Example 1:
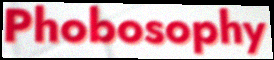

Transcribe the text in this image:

Phobosophy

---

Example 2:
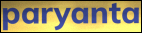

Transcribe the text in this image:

paryanta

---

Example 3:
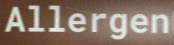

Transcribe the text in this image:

Allergen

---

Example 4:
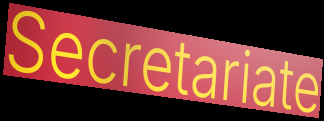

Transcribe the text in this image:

Secretariate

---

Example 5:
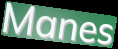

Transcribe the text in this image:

Manes